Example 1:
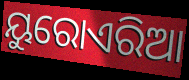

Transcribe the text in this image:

ୟୁରୋଏରିଆ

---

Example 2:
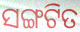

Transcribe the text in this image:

ସଙ୍ଗଟିତ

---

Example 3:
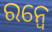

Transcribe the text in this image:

ରନ୍ୱେ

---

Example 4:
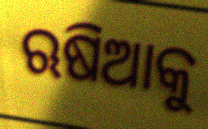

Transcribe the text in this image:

ଋଷିଆକୁ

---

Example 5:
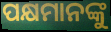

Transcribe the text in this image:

ପକ୍ଷମାନଙ୍କୁ